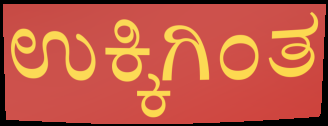
ಉಕ್ಕಿಗಿಂತ